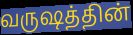
வருஷத்தின்